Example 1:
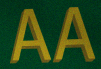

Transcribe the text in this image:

AA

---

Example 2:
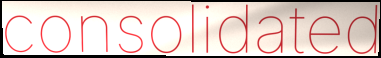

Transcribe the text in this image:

consolidated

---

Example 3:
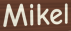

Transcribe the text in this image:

Mikel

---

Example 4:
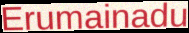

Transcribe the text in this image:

Erumainadu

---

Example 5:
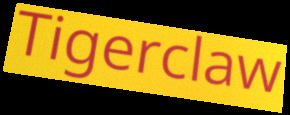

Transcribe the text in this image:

Tigerclaw